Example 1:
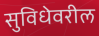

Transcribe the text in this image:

सुविधेवरील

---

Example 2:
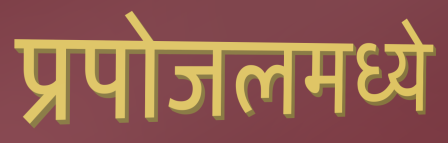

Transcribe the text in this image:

प्रपोजलमध्ये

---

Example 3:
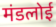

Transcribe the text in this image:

मंडलोई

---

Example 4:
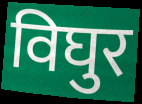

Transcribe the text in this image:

विघुर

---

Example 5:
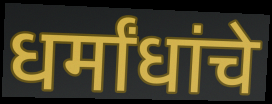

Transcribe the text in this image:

धर्मांधांचे